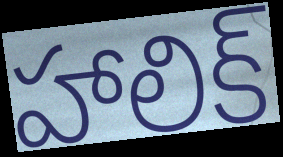
హాలిక్